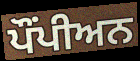
ਪੌਂਪੀਅਨ